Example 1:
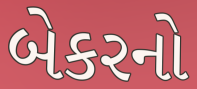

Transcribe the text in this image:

બેકરનો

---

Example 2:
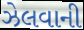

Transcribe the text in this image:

ઝેલવાની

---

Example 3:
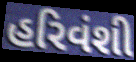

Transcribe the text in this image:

હરિવંશી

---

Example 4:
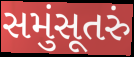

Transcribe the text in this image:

સમુંસૂતરું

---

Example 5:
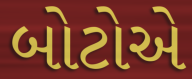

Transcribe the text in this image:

બોટોએ